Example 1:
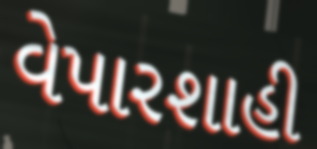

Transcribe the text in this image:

વેપારશાહી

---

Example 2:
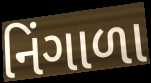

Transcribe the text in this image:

નિંગાળા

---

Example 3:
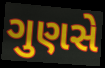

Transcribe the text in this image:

ગુણસે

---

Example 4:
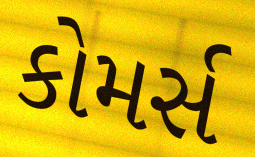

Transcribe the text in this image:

કોમર્સ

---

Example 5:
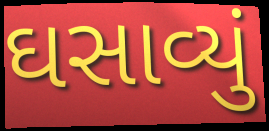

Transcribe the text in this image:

ઘસાવ્યું